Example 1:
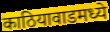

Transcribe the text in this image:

काठियावाडमध्ये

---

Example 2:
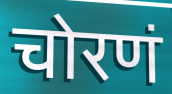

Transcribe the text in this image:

चोरणं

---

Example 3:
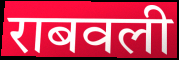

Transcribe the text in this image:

राबवली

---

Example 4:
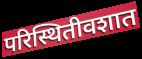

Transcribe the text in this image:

परिस्थितीवशात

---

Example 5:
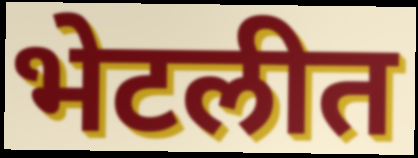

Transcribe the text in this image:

भेटलीत